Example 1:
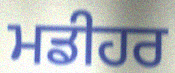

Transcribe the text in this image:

ਮਡੀਹਰ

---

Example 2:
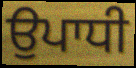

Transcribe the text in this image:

ਉਪਾਧੀ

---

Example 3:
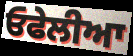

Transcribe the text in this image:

ਓਫੇਲੀਆ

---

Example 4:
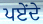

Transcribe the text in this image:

ਪਏਂਦੇ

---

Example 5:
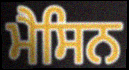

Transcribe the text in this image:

ਮੈਸਿਨ